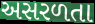
અસરળતા